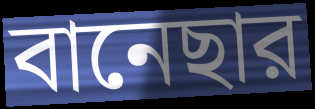
বানেছার